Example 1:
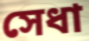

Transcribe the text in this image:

সেধা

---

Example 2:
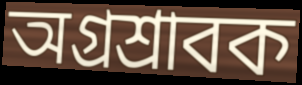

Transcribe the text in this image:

অগ্রশ্রাবক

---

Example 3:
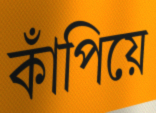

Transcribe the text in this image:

কাঁপিয়ে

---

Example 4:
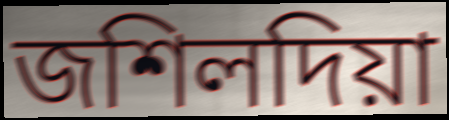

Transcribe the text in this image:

জশিলদিয়া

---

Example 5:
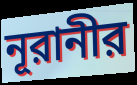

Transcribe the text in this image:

নূরানীর